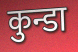
कुन्डा